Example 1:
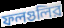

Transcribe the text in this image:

ফলগুলির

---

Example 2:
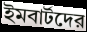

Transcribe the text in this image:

ইমবার্টদের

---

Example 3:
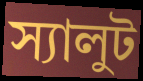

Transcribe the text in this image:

স্যালুট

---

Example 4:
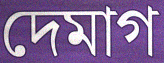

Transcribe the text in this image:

দেমাগ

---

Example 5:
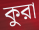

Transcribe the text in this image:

কুরা